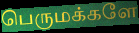
பெருமக்களே